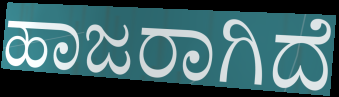
ಹಾಜರಾಗಿದೆ